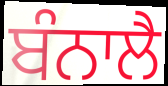
ਬੰਨਾਲੈ